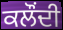
ਕਲੌਂਦੀ